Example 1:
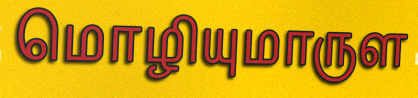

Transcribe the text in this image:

மொழியுமாருள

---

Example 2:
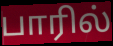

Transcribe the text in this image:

பாரில்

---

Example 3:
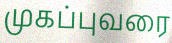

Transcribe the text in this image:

முகப்புவரை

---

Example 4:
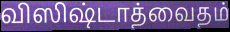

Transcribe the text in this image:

விஸிஷ்டாத்வைதம்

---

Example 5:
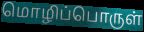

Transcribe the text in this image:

மொழிப்பொருள்